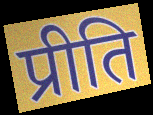
प्रीति